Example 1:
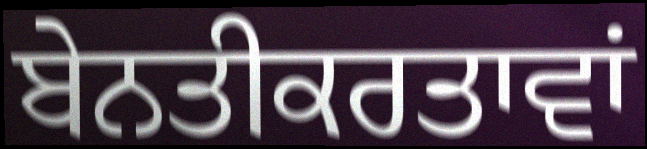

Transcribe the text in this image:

ਬੇਨਤੀਕਰਤਾਵਾਂ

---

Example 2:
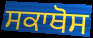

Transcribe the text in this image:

ਸਕਾਥੋਸ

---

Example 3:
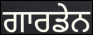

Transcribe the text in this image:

ਗਾਰਡੇਨ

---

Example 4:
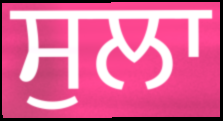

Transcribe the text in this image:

ਸੁਲਾ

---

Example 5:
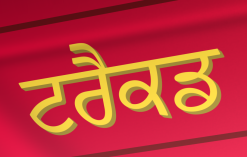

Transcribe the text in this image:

ਟਰੈਕਡ